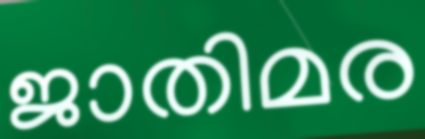
ജാതിമര